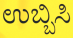
ಉಬ್ಬಿಸಿ